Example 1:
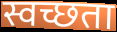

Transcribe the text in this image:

स्वच्छता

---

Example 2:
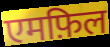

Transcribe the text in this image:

एमफ़िल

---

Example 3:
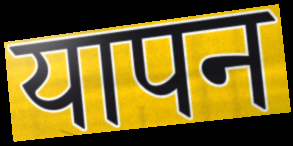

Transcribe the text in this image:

यापन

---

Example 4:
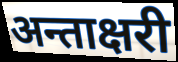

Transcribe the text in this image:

अन्ताक्षरी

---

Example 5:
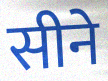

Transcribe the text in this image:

सीने